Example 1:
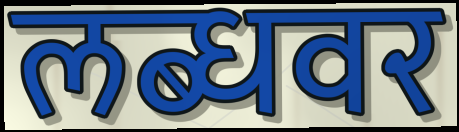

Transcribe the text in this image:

लब्धवर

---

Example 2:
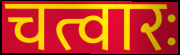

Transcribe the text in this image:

चत्वारः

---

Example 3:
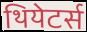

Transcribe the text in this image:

थियेटर्स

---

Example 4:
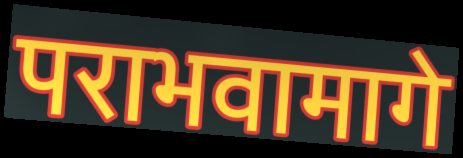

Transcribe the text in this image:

पराभवामागे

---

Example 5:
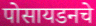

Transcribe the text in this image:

पोसायडनचे